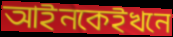
আইনকেইখনে